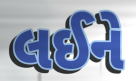
લઈને